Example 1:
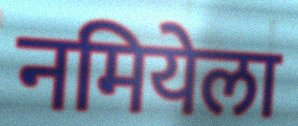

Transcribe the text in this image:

नमियेला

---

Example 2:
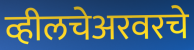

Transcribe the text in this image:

व्हीलचेअरवरचे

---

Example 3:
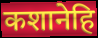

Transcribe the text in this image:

कशानेहि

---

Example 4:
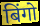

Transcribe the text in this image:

बिंगो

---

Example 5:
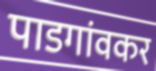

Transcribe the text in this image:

पाडगांवकर